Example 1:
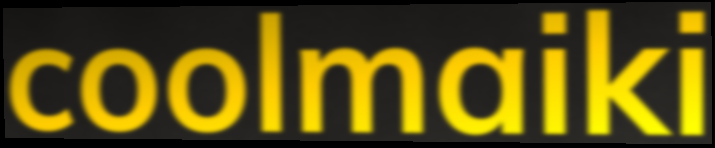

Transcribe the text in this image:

coolmaiki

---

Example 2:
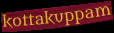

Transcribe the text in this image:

kottakuppam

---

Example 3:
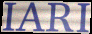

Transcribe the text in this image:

IARI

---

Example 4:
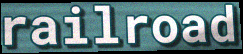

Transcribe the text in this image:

railroad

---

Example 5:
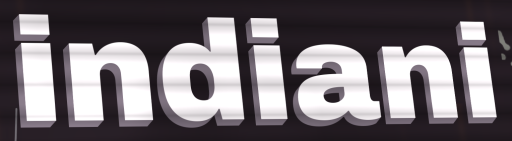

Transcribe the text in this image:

indiani